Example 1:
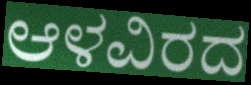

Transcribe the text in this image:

ಆಳವಿರದ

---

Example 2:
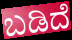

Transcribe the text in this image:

ಬಡಿದೆ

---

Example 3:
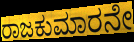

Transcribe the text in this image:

ರಾಜಕುಮಾರನೇ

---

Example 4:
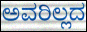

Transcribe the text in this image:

ಅವರಿಲ್ಲದ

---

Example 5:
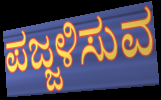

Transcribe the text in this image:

ಪಜ್ಜಳಿಸುವ